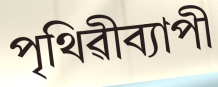
পৃথিৱীব্যাপী